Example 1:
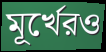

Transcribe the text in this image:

মূর্খেরও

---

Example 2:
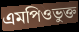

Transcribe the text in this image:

এমপিওভুক্ত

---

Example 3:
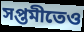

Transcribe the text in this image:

সপ্তমীতেও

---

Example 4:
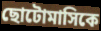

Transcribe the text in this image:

ছোটোমাসিকে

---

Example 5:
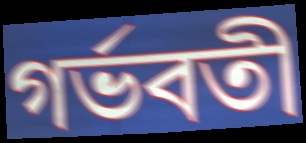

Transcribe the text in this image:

গর্ভবতী